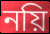
নয়ি